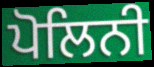
ਪੋਲਿਨੀ